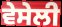
ਵੇਸੇਲੀ